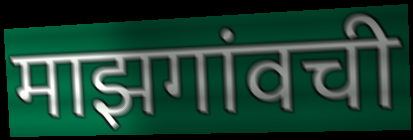
माझगांवची